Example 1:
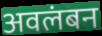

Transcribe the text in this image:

अवलंबन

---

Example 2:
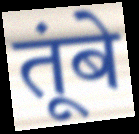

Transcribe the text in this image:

तूंबे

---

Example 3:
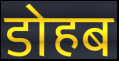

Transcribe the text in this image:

डोहब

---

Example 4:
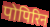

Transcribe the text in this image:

पोपिरिन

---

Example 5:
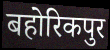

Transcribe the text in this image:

बहोरिकपुर